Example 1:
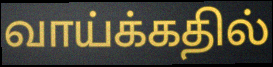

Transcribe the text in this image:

வாய்க்கதில்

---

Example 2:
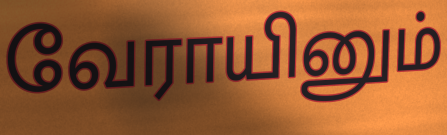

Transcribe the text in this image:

வேராயினும்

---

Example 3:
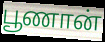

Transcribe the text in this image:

பூணான்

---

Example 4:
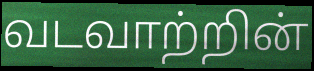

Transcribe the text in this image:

வடவாற்றின்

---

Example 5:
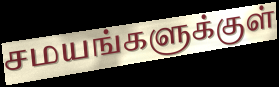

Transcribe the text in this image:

சமயங்களுக்குள்